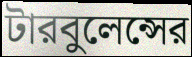
টারবুলেন্সের